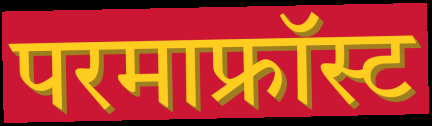
परमाफ्रॉस्ट